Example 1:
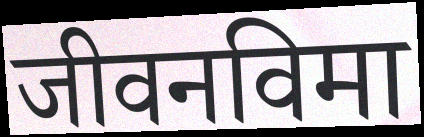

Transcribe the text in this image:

जीवनविमा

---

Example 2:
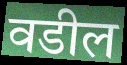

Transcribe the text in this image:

वडील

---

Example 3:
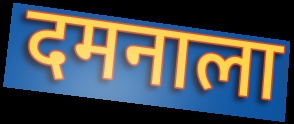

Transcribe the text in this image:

दमनाला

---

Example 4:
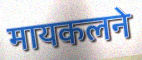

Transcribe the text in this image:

मायकलने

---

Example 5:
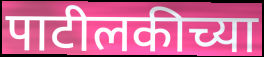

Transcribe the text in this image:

पाटीलकीच्या